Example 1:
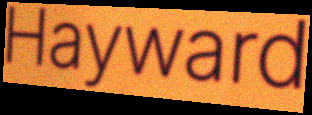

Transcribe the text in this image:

Hayward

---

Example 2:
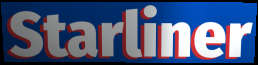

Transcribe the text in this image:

Starliner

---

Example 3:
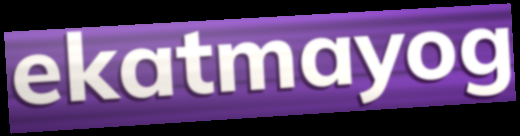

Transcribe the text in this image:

ekatmayog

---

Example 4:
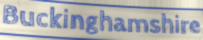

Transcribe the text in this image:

Buckinghamshire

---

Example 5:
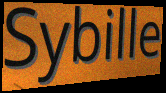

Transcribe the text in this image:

Sybille